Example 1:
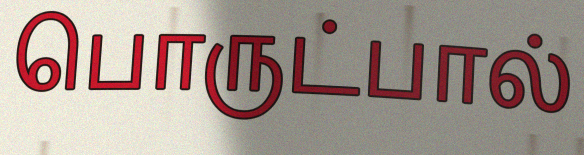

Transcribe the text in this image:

பொருட்பால்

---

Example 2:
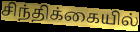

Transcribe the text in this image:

சிந்திக்கையில்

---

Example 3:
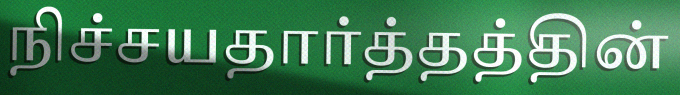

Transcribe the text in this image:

நிச்சயதார்த்தத்தின்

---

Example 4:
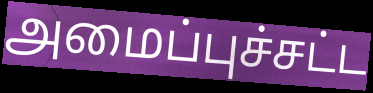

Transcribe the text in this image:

அமைப்புச்சட்ட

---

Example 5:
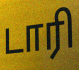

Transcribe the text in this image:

டாரி